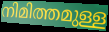
നിമിത്തമുള്ള